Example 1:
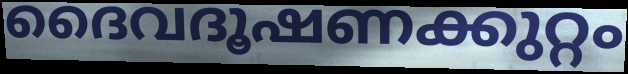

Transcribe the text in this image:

ദൈവദൂഷണക്കുറ്റം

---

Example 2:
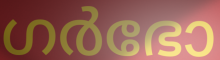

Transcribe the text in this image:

ഗർഭോ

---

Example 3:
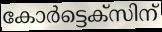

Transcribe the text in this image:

കോർട്ടെക്സിന്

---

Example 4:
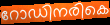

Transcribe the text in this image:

റോഡിനരികെ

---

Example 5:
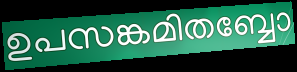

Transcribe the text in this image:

ഉപസങ്കമിതബ്ബോ